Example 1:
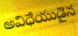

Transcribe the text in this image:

అవిధేయుడైన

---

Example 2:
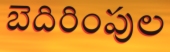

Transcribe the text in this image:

బెదిరింపుల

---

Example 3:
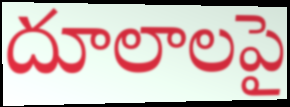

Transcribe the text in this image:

దూలాలపై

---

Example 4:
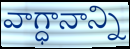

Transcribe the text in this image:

వాగ్ధానాన్ని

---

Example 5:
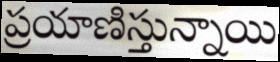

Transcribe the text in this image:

ప్రయాణిస్తున్నాయి